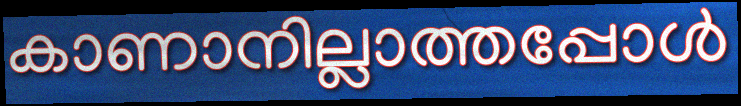
കാണാനില്ലാത്തപ്പോൾ